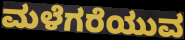
ಮಳೆಗರೆಯುವ